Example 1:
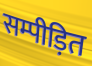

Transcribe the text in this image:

सम्पीड़ित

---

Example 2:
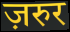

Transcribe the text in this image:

ज़रुर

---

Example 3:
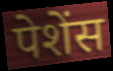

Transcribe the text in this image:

पेशेंस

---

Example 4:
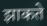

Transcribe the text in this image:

झाकते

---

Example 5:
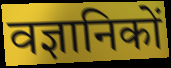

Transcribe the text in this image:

वज्ञानिकों